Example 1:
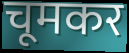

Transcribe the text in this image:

चूमकर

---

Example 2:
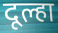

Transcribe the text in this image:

दूल्हा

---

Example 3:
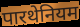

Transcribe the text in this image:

पारथेनियम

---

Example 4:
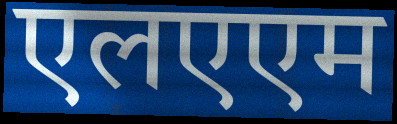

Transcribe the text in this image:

एलएएम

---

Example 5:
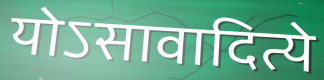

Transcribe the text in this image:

योऽसावादित्ये